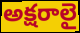
అక్షరాలై